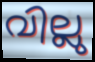
വില്ലു